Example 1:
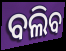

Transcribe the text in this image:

ବଲିବ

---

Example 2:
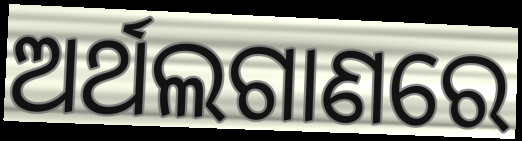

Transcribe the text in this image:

ଅର୍ଥଲଗାଣରେ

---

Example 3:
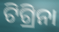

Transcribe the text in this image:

ଟିଗ୍ରିନା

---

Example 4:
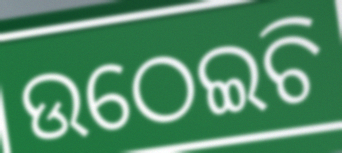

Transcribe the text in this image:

ଉଠେଇଚି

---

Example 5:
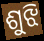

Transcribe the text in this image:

ଶୁଝି